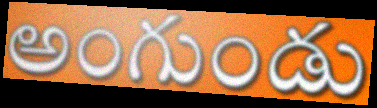
అంగుండు